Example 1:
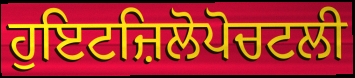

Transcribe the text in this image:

ਹੁਇਟਜ਼ਿਲੋਪੋਚਟਲੀ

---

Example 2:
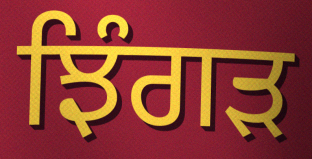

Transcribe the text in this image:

ਝਿੰਗੜ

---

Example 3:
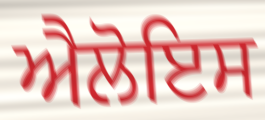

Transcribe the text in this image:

ਐਲੋਇਸ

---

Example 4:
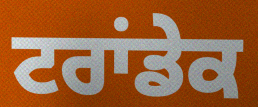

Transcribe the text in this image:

ਟਰਾਂਡੇਕ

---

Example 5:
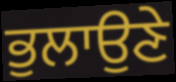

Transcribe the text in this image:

ਭੁਲਾਉਣੇ